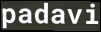
padavi